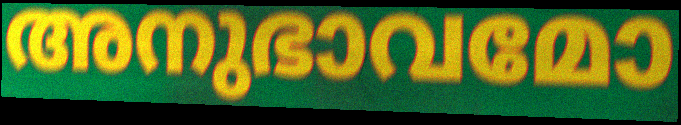
അനുഭാവമോ